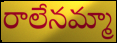
రాలేనమ్మా